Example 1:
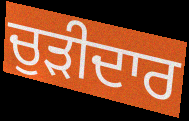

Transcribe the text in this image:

ਚੁੜੀਦਾਰ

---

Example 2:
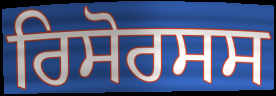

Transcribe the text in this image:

ਰਿਸੋਰਸਸ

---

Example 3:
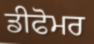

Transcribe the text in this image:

ਡੀਫੋਮਰ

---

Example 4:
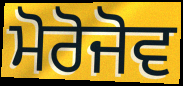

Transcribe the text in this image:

ਮੋਰੋਜੋਵ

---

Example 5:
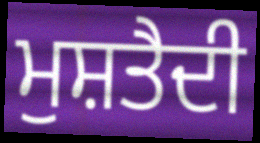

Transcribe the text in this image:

ਮੁਸ਼ਤੈਦੀ